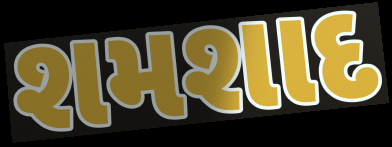
શમશાદ